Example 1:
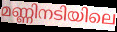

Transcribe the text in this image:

മണ്ണിനടിയിലെ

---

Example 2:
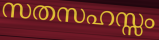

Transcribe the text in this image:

സതസഹസ്സം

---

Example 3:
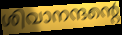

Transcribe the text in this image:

ശിവാനന്ദന്റെ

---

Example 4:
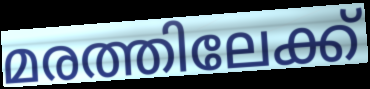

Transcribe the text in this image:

മരത്തിലേക്ക്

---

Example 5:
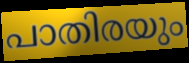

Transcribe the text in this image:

പാതിരയും